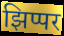
झिप्पर